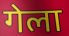
गेला